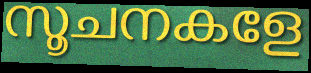
സൂചനകളേ